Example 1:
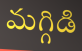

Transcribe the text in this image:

మగ్గిడి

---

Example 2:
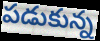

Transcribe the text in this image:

పడుకున్న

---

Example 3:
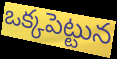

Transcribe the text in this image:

ఒక్కపెట్టున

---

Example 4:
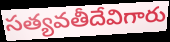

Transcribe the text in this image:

సత్యవతీదేవిగారు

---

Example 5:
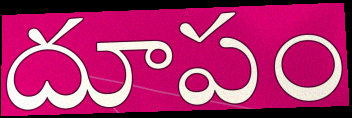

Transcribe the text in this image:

దూపం